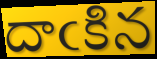
దాఁకిన